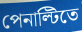
পেনাল্টিতে